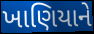
ખાણિયાને